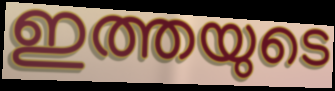
ഇത്തയുടെ